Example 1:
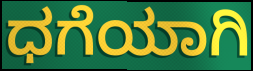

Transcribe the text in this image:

ಧಗೆಯಾಗಿ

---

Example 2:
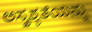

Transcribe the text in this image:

ಅಸ್ಪೃಶ್ಯತೆಯನ್ನು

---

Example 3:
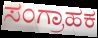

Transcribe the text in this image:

ಸಂಗ್ರಾಹಕ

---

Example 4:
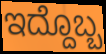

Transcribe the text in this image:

ಇದ್ದೊಬ್ಬ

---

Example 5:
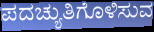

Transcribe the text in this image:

ಪದಚ್ಯುತಿಗೊಳಿಸುವ